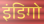
इंडिगो